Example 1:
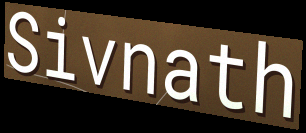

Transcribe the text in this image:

Sivnath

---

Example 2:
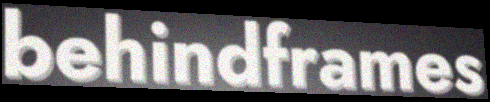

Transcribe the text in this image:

behindframes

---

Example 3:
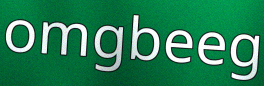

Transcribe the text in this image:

omgbeeg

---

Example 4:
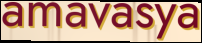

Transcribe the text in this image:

amavasya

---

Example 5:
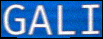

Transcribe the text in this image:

GALI